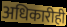
अधिकारीही